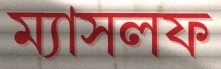
ম্যাসলফ